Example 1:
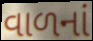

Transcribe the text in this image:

વાળનાં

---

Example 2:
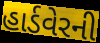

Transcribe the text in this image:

હાર્ડવેરની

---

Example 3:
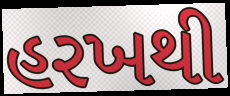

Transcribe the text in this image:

હરખથી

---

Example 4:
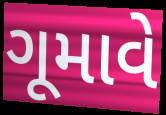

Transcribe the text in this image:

ગૂમાવે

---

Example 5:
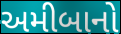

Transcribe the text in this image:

અમીબાનો